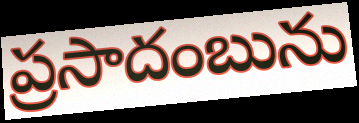
ప్రసాదంబును